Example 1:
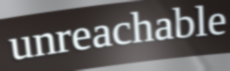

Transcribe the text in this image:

unreachable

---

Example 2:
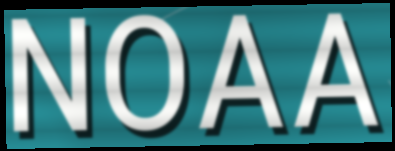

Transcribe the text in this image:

NOAA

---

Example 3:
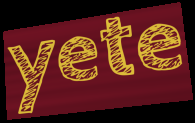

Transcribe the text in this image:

yete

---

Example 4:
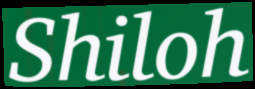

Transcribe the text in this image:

Shiloh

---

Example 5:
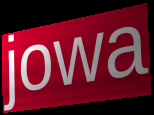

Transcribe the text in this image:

jowa